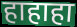
हाहाहा